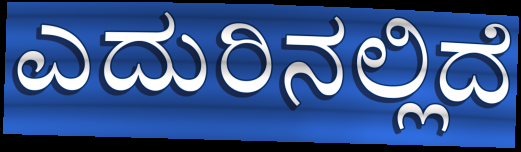
ಎದುರಿನಲ್ಲಿದೆ